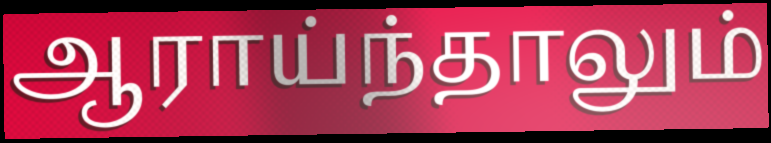
ஆராய்ந்தாலும்